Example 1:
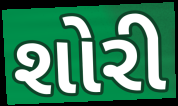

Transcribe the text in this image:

શોરી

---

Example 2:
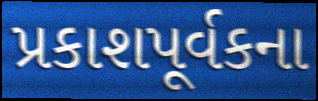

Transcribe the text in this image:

પ્રકાશપૂર્વકના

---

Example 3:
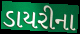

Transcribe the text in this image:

ડાયરીના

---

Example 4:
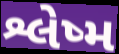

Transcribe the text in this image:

શ્લેષ્મ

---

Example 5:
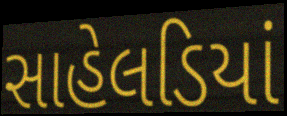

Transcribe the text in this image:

સાહેલડિયાં